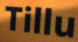
Tillu